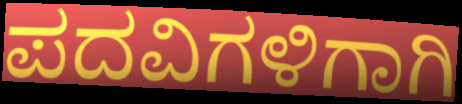
ಪದವಿಗಳಿಗಾಗಿ